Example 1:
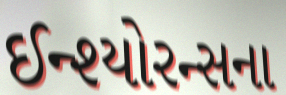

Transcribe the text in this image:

ઈન્શ્યોરન્સના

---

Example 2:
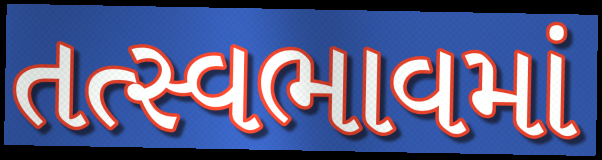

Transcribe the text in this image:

તત્સ્વભાવમાં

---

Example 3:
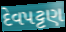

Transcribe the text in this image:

દેવપટ્ટણ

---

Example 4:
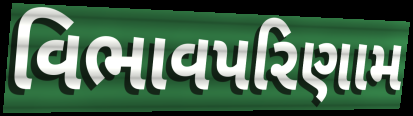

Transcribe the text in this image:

વિભાવપરિણામ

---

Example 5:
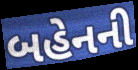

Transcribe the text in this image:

બહેનની